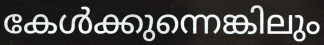
കേൾക്കുന്നെങ്കിലും